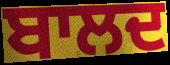
ਬਾਲਦ